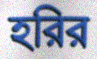
হরির